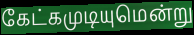
கேட்கமுடியுமென்று